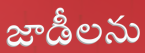
జాడీలను